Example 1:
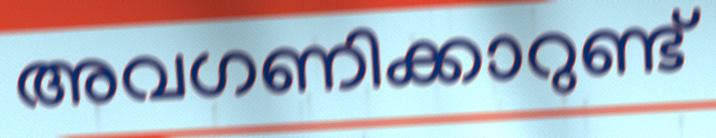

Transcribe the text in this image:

അവഗണിക്കാറുണ്ട്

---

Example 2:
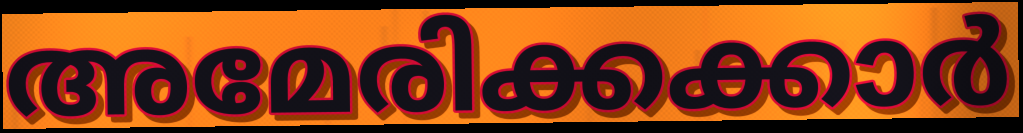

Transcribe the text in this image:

അമേരിക്കക്കാർ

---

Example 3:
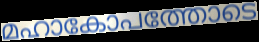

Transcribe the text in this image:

മഹാകോപത്തോടെ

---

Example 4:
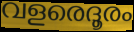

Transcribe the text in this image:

വളരെദൂരം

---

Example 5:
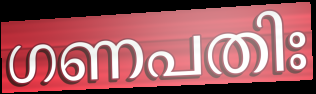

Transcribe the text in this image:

ഗണപതിഃ